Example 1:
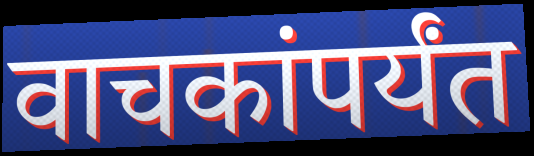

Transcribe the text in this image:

वाचकांपर्यंत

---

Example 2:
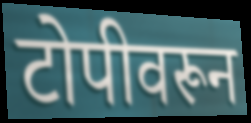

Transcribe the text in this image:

टोपीवरून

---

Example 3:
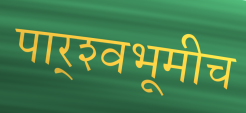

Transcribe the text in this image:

पार्श्वभूमीच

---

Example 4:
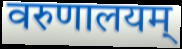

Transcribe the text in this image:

वरुणालयम्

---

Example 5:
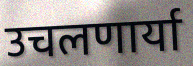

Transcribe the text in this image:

उचलणार्या